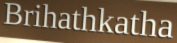
Brihathkatha